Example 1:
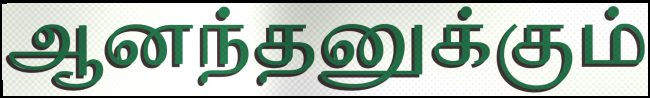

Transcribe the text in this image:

ஆனந்தனுக்கும்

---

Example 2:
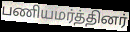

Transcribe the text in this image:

பணியமர்த்தினர்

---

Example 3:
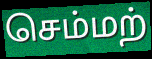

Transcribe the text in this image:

செம்மற்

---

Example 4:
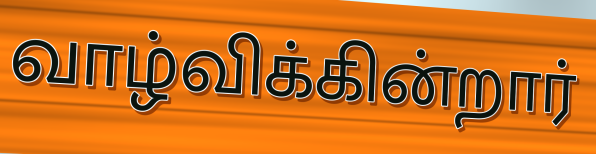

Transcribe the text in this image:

வாழ்விக்கின்றார்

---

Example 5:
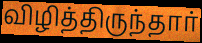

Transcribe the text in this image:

விழித்திருந்தார்